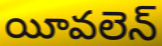
యీవలెన్